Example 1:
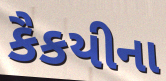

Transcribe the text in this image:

કૈકયીના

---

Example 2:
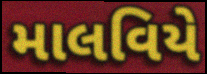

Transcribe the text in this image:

માલવિયે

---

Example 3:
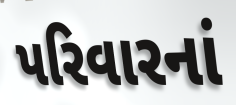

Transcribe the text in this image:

પરિવારનાં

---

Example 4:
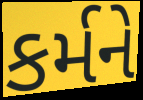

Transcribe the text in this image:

કર્મને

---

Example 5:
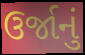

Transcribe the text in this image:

ઉર્જાનું